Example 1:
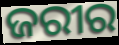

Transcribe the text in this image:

ଜରୀର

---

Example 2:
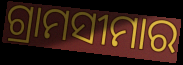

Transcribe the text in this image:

ଗ୍ରାମସୀମାର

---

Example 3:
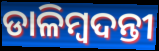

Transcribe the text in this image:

ଡାଳିମ୍ବଦନ୍ତୀ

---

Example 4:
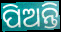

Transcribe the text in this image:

ପିଅନ୍ତି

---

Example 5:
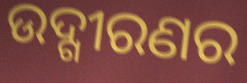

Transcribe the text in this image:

ଉଦ୍ଗୀରଣର